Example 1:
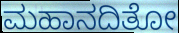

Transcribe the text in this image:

ಮಹಾನದಿತೋ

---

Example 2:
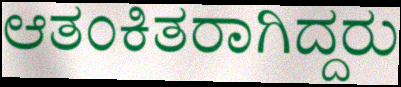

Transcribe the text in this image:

ಆತಂಕಿತರಾಗಿದ್ದರು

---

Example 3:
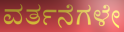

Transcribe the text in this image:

ವರ್ತನೆಗಳೇ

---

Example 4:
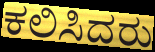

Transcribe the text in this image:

ಕಲಿಸಿದರು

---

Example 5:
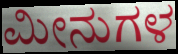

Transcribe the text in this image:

ಮೀನುಗಳ